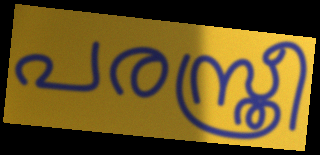
പരസ്ത്രീ